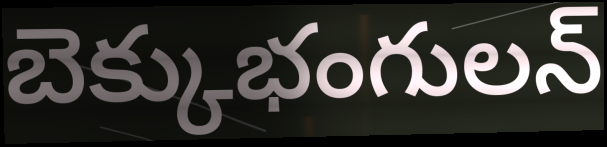
బెక్కుభంగులన్